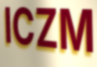
ICZM